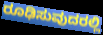
ರೂಢಿಸುವುದರಲ್ಲಿ